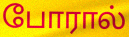
போரால்